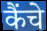
कैंचे